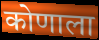
कोणाला